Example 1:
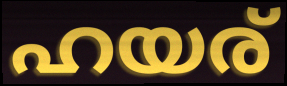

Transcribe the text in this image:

ഹയര്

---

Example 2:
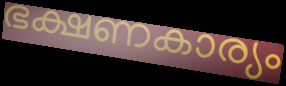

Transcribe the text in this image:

ഭക്ഷണകാര്യം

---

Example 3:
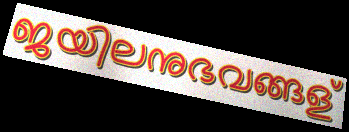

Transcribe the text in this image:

ജയിലനുഭവങ്ങള്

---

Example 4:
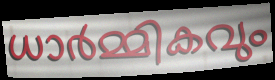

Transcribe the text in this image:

ധാർമ്മികവും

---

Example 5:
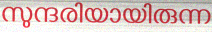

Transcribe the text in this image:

സുന്ദരിയായിരുന്ന